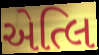
એત્લિ